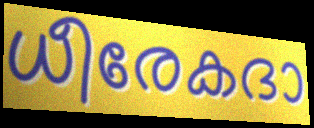
ധീരേകദാ